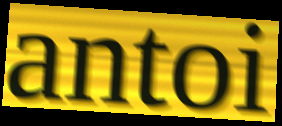
antoi